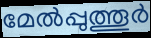
മേൽപ്പുത്തൂർ